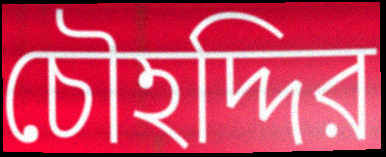
চৌহদ্দির